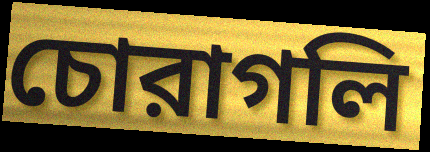
চোরাগলি